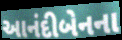
આનંદીબેનના